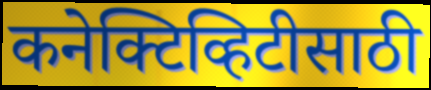
कनेक्टिव्हिटीसाठी